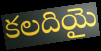
కలదియై